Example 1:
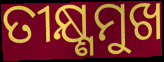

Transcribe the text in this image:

ତୀକ୍ଷ୍ଣମୁଖ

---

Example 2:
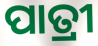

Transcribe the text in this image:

ପାତ୍ରୀ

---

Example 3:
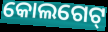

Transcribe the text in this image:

କୋଲଗେଟ୍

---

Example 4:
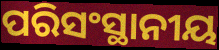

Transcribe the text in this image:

ପରିସଂସ୍ଥାନୀୟ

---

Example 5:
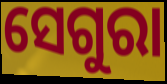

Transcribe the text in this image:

ସେଗୁରା